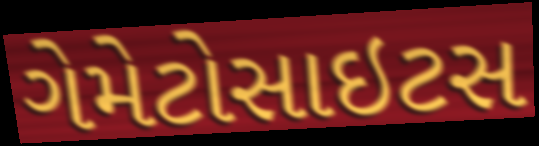
ગેમેટોસાઇટસ